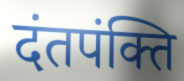
दंतपंक्ति